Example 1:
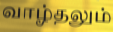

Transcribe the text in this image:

வாழ்தலும்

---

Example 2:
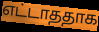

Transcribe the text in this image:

எட்டாததாக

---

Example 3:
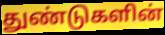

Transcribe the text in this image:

துண்டுகளின்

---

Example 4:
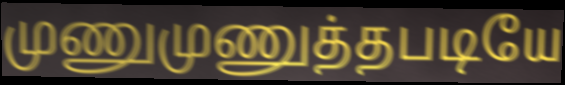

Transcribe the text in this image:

முணுமுணுத்தபடியே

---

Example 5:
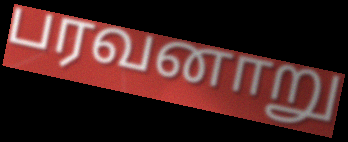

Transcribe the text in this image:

பரவனாறு